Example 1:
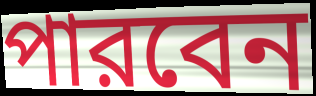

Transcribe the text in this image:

পারবেন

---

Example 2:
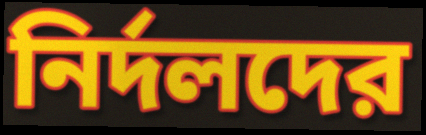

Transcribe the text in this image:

নির্দলদের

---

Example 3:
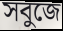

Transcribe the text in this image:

সবুজে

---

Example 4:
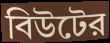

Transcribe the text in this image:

বিউটের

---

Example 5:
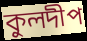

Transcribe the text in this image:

কুলদীপ